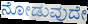
ನೋಡುವುದೇ